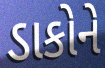
ડાકોને